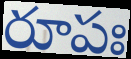
రూపః